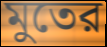
মুতের